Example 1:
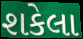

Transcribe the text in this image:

શકેલા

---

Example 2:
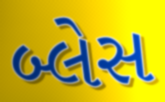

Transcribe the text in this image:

બ્લેસ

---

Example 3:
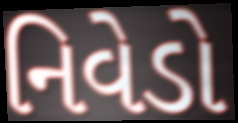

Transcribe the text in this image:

નિવેડો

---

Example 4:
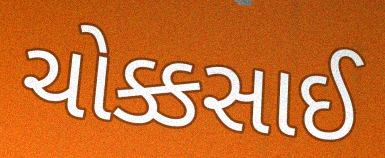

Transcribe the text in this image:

ચોક્કસાઈ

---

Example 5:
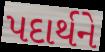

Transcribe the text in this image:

પદાર્થને